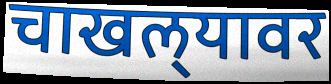
चाखल्यावर